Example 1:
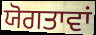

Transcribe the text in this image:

ਯੋਗਤਾਵਾਂ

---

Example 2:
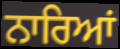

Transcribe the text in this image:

ਨਾਰਿਆਂ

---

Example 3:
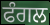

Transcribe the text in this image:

ਫੰਗਲ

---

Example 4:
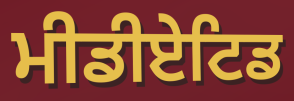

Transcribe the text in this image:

ਮੀਡੀਏਟਿਡ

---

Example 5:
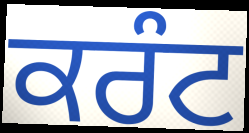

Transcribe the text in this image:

ਕਰੰਟ